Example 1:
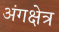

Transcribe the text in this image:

अंगक्षेत्र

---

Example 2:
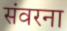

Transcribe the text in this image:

संवरना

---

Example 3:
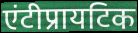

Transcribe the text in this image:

एंटीप्रायटिक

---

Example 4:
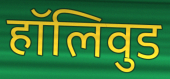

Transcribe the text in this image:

हॉलिवुड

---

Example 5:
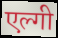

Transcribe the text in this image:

एल्गी